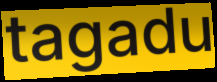
tagadu